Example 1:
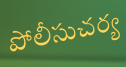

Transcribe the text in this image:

పోలీసుచర్య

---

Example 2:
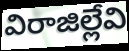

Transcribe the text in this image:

విరాజిల్లేవి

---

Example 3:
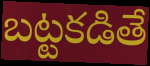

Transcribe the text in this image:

బట్టకడితే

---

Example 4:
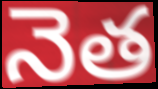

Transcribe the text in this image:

నెత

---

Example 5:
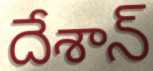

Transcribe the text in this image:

దేశాన్